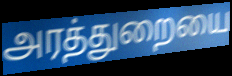
அரத்துறையை